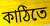
কাঠিতে